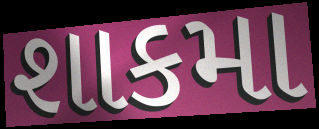
શાકમા